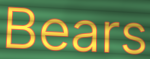
Bears